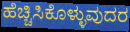
ಹೆಚ್ಚಿಸಿಕೊಳ್ಳುವುದರ